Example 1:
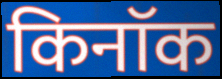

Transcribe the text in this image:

किनॉक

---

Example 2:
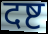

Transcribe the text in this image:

दष्ट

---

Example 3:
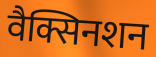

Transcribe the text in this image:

वैक्सिनशन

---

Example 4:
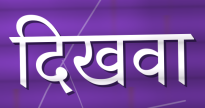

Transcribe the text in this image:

दिखवा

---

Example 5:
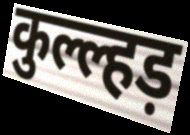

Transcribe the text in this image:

कुल्ल्हड़